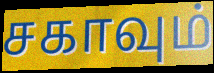
சகாவும்